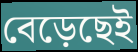
বেড়েছেই